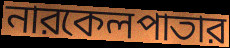
নারকেলপাতার